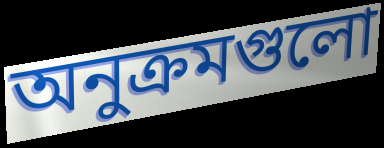
অনুক্রমগুলো